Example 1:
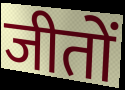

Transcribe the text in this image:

जीतों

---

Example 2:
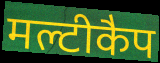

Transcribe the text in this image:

मल्‍टीकैप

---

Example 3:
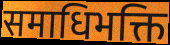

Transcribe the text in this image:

समाधिभक्ति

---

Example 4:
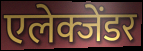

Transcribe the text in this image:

एलेक्‍जेंडर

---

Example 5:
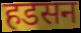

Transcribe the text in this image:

हडसन